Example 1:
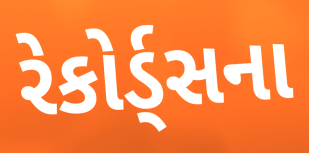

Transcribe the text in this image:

રેકોર્ડ્સના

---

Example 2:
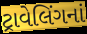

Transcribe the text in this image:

ટ્રાવેલિંગનાં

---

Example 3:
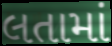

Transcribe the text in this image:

લતામાં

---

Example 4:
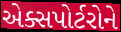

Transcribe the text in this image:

એક્સપોર્ટરોને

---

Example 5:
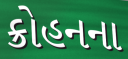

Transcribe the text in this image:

ક્રોહનના